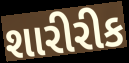
શારીરીક